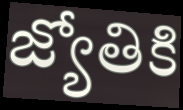
జ్యోతికి